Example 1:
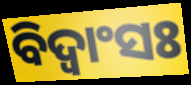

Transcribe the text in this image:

ବିଦ୍ଵାଂସଃ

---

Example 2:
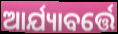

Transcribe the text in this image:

ଆର୍ଯ୍ୟାବର୍ତ୍ତେ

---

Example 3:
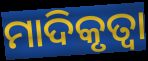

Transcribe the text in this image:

ମାଦିକୃତ୍ୱା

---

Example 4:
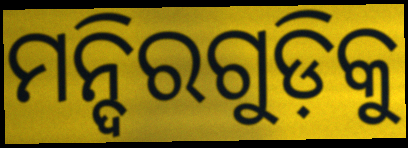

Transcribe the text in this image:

ମନ୍ଦିରଗୁଡ଼ିକୁ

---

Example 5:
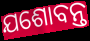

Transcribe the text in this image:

ଯଶୋବନ୍ତ